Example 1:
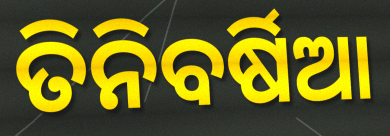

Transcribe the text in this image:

ତିନିବର୍ଷିଆ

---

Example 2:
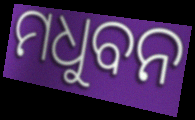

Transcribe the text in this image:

ମଧୁବନ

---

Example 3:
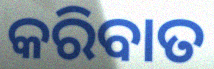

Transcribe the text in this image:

କରିବାତ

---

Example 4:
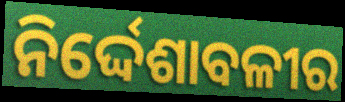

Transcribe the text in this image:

ନିର୍ଦ୍ଦେଶାବଳୀର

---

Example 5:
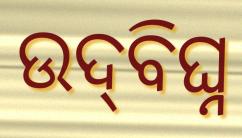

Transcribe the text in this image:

ଉଦ୍‍ବିଘ୍ନ